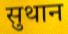
सुथान